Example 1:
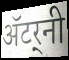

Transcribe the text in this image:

ॲटर्नी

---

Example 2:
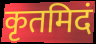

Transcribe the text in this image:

कृतमिदं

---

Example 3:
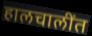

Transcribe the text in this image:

हालचालींत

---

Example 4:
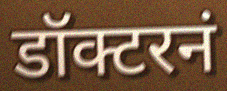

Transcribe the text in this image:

डॉक्टरनं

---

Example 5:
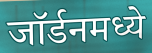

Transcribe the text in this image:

जॉर्डनमध्ये